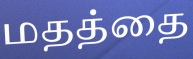
மதத்தை